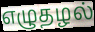
எழுதழல்